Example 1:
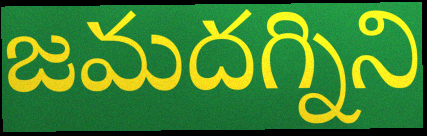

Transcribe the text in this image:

జమదగ్నిని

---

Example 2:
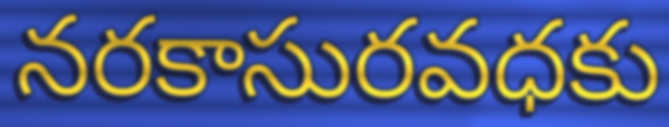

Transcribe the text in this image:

నరకాసురవధకు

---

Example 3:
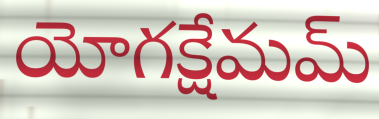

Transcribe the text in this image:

యోగక్షేమమ్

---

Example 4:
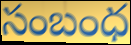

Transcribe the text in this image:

సంబంధ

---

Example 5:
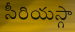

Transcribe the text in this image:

సీరియస్గా